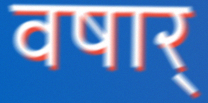
वषार्